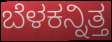
ಬೆಳಕನ್ನಿತ್ತ